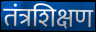
तंत्रशिक्षण